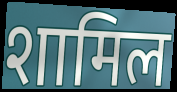
शामिल